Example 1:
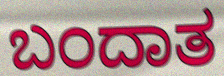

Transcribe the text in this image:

ಬಂದಾತ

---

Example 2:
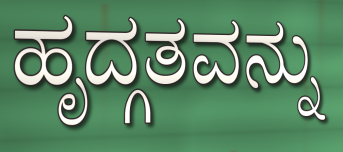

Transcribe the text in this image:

ಹೃದ್ಗತವನ್ನು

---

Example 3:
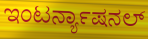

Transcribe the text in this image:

ಇಂಟರ್ನ್ಯಾಷನಲ್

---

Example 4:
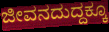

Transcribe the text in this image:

ಜೀವನದುದ್ದಕ್ಕೂ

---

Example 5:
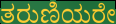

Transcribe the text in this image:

ತರುಣಿಯರೇ